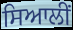
ਸਿਆਲੀਂ